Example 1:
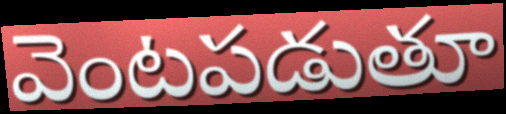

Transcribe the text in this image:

వెంటపడుతూ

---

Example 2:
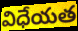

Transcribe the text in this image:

విధేయత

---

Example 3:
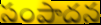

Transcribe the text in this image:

సంపాదన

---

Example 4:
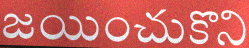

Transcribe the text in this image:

జయించుకొని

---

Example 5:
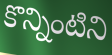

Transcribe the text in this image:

కొన్నింటిని